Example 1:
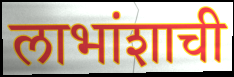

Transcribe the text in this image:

लाभांशाची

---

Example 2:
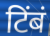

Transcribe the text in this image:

टिंबं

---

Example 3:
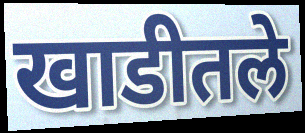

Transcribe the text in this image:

खाडीतले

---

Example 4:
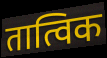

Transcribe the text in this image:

तात्विक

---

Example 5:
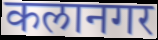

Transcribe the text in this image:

कलानगर